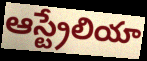
ఆస్ట్రేలియా